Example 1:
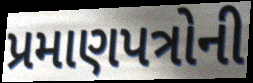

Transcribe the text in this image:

પ્રમાણપત્રોની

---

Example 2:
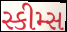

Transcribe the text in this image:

સ્કીમ્સ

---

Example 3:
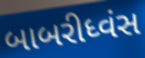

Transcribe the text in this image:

બાબરીધ્વંસ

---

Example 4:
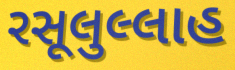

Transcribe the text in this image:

રસૂલુલ્લાહ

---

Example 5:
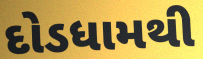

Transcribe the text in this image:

દોડધામથી